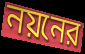
নয়নের